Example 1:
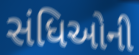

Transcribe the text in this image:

સંધિઓની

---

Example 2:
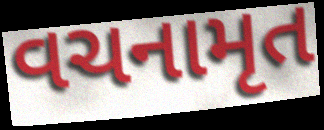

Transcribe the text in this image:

વચનામૃત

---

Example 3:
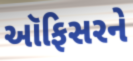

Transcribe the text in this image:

ઑફિસરને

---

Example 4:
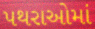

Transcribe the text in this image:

પથરાઓમાં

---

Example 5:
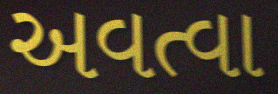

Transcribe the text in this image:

અવત્વા